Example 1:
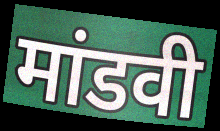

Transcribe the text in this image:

मांडवी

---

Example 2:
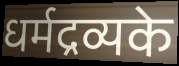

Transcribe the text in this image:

धर्मद्रव्यके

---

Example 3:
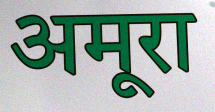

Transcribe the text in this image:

अमूरा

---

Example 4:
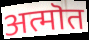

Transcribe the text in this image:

अत्मॊत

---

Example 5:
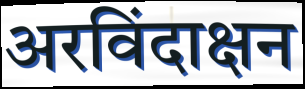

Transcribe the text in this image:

अरविंदाक्षन